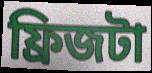
ফ্রিজটা